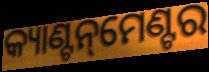
କ୍ୟାଣ୍ଟନ୍‌ମେଣ୍ଟର